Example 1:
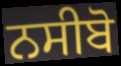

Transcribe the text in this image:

ਨਸੀਬੋ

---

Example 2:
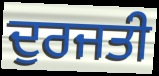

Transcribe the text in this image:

ਦੁਰਜਤੀ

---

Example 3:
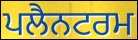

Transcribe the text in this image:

ਪਲੈਨਟਰਮ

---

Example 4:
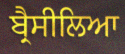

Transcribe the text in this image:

ਬ੍ਰੈਸੀਲਿਆ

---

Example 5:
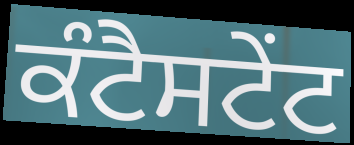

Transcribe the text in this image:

ਕੰਟੈਸਟੇਂਟ